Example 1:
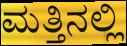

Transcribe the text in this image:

ಮತ್ತಿನಲ್ಲಿ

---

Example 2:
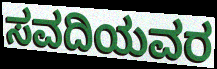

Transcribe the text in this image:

ಸವದಿಯವರ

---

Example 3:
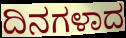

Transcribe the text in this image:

ದಿನಗಳಾದ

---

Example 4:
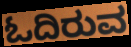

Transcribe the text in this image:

ಓದಿರುವ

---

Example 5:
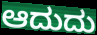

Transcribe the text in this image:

ಆದುದು